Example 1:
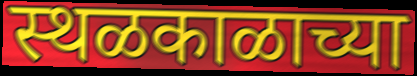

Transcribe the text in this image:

स्थळकाळाच्या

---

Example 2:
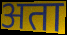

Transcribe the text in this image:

अता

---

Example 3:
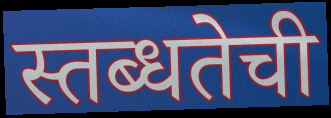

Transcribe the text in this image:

स्तब्धतेची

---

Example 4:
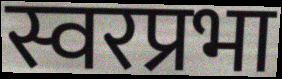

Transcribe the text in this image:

स्वरप्रभा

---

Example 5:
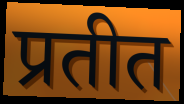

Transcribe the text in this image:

प्रतीत